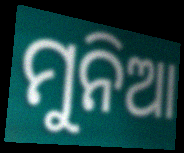
ମୁନିଆ